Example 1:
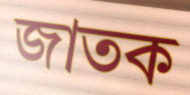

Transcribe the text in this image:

জাতক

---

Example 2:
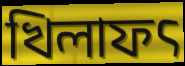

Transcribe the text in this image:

খিলাফৎ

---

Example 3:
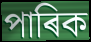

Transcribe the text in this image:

পাৰিক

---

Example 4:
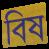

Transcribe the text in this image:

বিষ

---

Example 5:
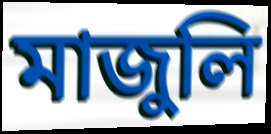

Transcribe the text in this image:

মাজুলি